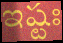
ఇష్టః